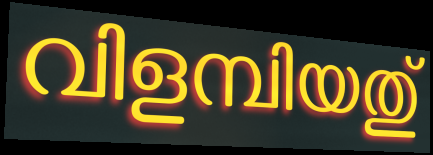
വിളമ്പിയതു്